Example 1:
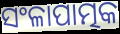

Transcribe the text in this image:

ସଂଳାପାତ୍ମକ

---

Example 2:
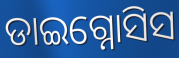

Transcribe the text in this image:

ଡାଇଗ୍ନୋସିସ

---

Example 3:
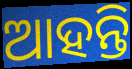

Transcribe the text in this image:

ଆହନ୍ତି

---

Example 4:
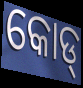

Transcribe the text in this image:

କୋଡ୍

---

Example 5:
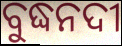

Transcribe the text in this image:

ବୁଦ୍ଧନଦୀ